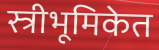
स्त्रीभूमिकेत